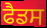
ਫੈਡਸ